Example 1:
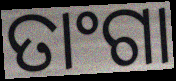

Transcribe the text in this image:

ତାଂଗା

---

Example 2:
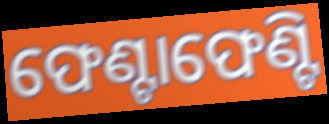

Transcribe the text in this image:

ଫେଣ୍ଟାଫେଣ୍ଟି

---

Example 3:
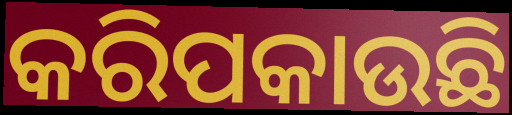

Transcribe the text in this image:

କରିପକାଉଛି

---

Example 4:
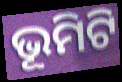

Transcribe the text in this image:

ଭୂମିଟି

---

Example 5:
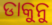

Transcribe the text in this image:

ଡାକୁନୁ